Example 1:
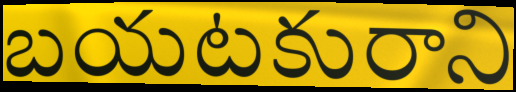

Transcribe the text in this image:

బయటకురాని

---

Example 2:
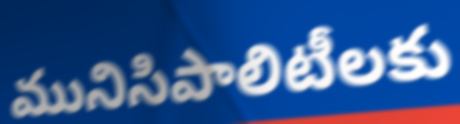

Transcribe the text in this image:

మునిసిపాలిటీలకు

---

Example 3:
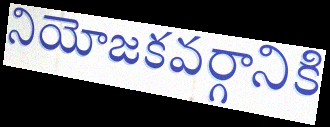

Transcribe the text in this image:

నియోజకవర్గానికి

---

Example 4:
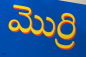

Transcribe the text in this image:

మొర్రి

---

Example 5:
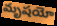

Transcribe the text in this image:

మృషయో